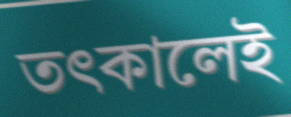
তৎকালেই